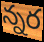
న్నర